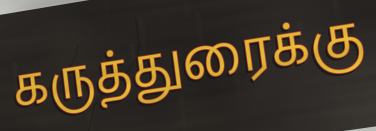
கருத்துரைக்கு